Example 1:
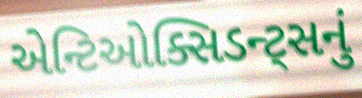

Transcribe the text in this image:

એન્ટિઓક્સિડન્ટ્સનું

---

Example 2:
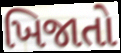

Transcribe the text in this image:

ખિજાતો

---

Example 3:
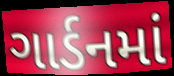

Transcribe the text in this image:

ગાર્ડનમાં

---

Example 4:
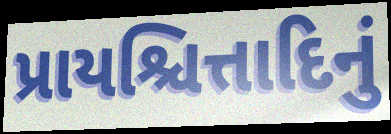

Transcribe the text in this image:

પ્રાયશ્ચિત્તાદિનું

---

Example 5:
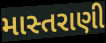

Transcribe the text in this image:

માસ્તરાણી